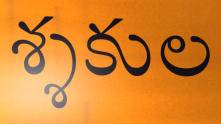
శ్శకుల